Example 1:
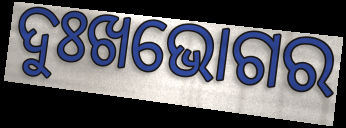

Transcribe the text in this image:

ଦୁଃଖଭୋଗର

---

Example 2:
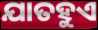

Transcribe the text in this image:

ଯାତହୁଏ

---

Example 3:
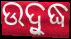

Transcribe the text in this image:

ଉଦ୍ବୁଦ୍ଧ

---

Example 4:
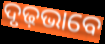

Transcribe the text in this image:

ଦୃଢ଼ଭାବେ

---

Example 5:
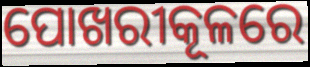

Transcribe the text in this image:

ପୋଖରୀକୂଳରେ